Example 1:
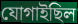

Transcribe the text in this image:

যোগাইছিল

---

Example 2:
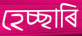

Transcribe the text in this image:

হেচ্ছাৰি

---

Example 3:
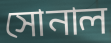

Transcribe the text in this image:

সোনাল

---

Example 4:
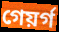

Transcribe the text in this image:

গেয়ৰ্গ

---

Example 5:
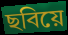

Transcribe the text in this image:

ছবিয়ে